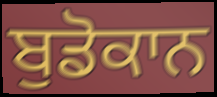
ਬੁਡੋਕਾਨ